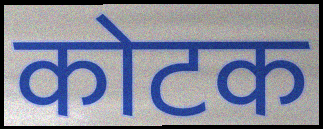
कोटक